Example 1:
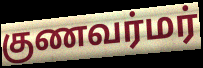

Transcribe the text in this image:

குணவர்மர்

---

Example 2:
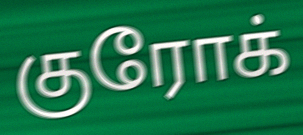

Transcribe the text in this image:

குரோக்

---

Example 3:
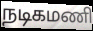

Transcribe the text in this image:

நடிகமணி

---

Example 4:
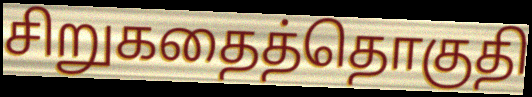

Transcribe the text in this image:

சிறுகதைத்தொகுதி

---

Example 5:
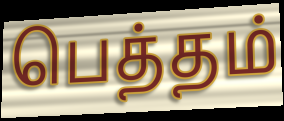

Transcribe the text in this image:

பெத்தம்